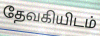
தேவகியிடம்